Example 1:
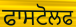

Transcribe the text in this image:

ਫਾਸਟੋਲਫ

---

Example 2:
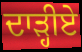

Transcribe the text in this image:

ਦਾੜ੍ਹੀਏ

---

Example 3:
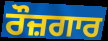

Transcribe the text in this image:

ਰੌਜ਼ਗਾਰ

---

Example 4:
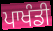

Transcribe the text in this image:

ਪਾਖੰਡੀ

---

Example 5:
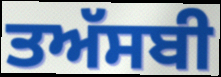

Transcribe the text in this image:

ਤਅੱਸਬੀ